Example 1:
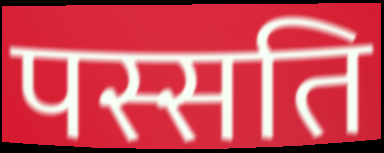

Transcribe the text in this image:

पस्सति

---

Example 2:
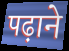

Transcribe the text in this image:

पढ़ाने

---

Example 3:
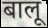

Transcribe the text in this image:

बालू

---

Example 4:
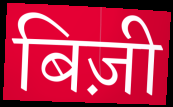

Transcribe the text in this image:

बिज़ी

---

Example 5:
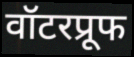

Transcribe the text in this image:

वॉटरप्रूफ